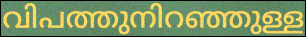
വിപത്തുനിറഞ്ഞുള്ള